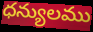
ధన్యులము